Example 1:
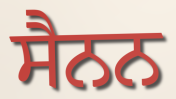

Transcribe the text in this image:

ਸੈਨਨ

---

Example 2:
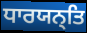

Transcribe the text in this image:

ਧਾਰਯਨ੍ਤਿ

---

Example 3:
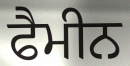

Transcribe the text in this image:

ਫੈਮੀਨ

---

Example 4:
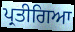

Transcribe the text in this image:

ਪ੍ਰਤੀਗਿਆ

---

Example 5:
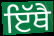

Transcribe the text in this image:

ਇੱਥੈ